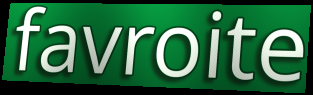
favroite